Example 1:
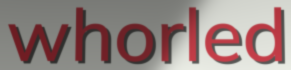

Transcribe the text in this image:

whorled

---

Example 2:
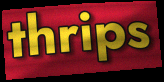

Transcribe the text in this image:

thrips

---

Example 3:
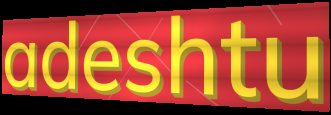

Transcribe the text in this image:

adeshtu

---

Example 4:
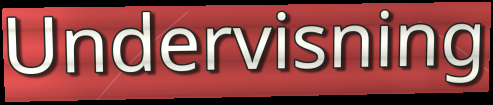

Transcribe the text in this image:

Undervisning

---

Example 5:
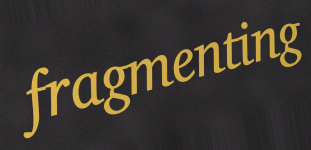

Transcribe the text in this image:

fragmenting